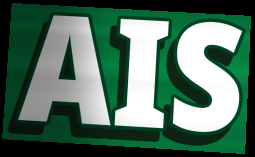
AIS